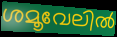
ശമൂവേലിൽ